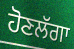
ਹੋਣਲੱਗਾ